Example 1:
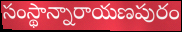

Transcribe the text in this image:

సంస్థాన్నారాయణపురం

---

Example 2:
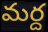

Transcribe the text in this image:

మర్ద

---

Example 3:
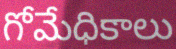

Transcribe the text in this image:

గోమేధికాలు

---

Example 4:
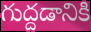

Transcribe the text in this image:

గుద్దడానికి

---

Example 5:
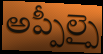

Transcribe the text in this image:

అప్పీల్పై